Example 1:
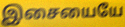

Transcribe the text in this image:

இசையையே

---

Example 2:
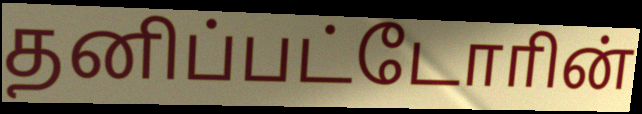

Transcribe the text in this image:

தனிப்பட்டோரின்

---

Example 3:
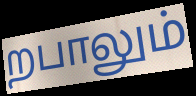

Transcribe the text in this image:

றபாலும்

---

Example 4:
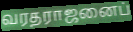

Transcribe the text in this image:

வரதராஜனைப்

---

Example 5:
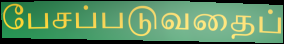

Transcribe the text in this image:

பேசப்படுவதைப்